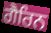
ਗੈਰਿਨ